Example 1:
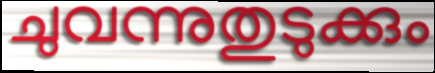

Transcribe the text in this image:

ചുവന്നുതുടുക്കും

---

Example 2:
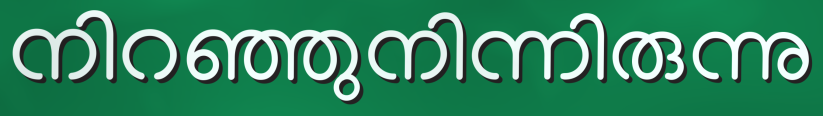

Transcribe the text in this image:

നിറഞ്ഞുനിന്നിരുന്നു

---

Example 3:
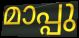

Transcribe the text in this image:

മാപ്പു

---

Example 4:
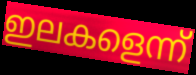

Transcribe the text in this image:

ഇലകളെന്ന്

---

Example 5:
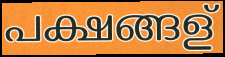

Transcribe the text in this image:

പക്ഷങ്ങള്